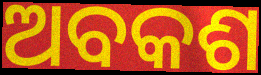
ଅବକଶ